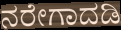
ನರೇಗಾದಡಿ